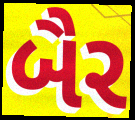
બૈર